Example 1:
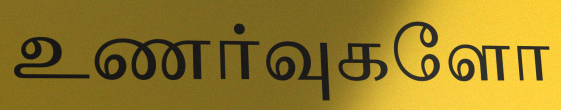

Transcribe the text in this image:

உணர்வுகளோ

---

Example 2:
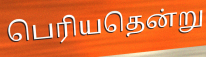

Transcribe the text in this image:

பெரியதென்று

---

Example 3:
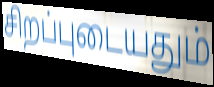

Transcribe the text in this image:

சிறப்புடையதும்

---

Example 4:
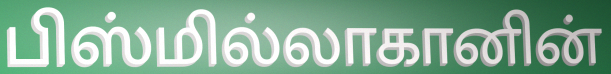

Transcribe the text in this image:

பிஸ்மில்லாகானின்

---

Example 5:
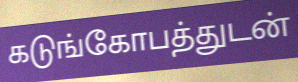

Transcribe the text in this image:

கடுங்கோபத்துடன்